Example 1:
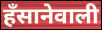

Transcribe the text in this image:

हँसानेवाली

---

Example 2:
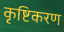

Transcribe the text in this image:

कृष्टिकरण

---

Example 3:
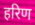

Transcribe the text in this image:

हरिण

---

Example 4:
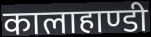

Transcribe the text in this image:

कालाहाण्डी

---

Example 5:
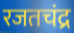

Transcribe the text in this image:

रजतचंद्र